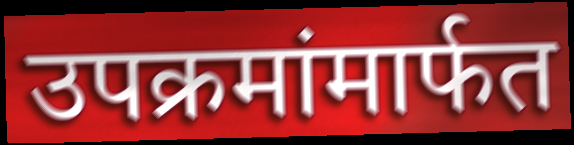
उपक्रमांमार्फत